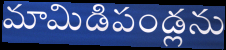
మామిడిపండ్లను